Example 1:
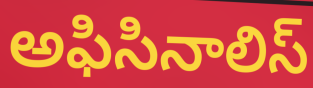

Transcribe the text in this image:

అఫిసినాలిస్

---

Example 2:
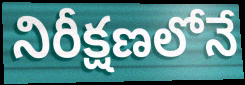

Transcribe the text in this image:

నిరీక్షణలోనే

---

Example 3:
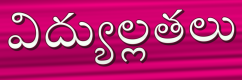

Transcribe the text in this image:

విద్యుల్లతలు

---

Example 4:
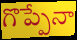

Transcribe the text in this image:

గొప్పేనా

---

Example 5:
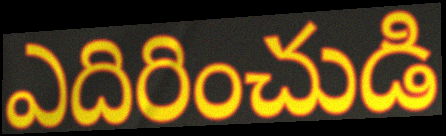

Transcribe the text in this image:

ఎదిరించుడి